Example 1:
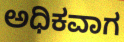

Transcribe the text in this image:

ಅಧಿಕವಾಗ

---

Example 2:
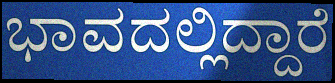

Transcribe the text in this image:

ಭಾವದಲ್ಲಿದ್ದಾರೆ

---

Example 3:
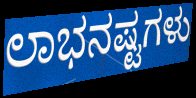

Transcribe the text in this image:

ಲಾಭನಷ್ಟಗಳು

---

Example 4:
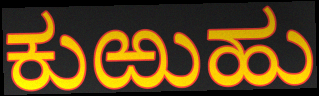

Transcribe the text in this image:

ಕುಱುಹು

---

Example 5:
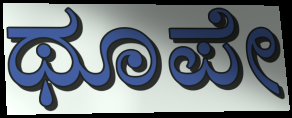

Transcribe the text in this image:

ಥೂಪೇ